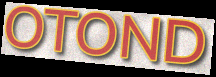
OTOND